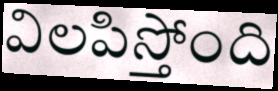
విలపిస్తోంది